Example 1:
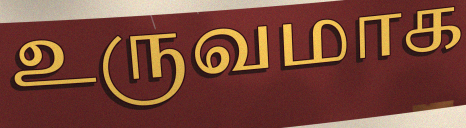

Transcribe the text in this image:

உருவமாக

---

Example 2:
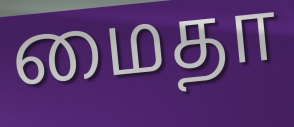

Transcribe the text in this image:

மைதா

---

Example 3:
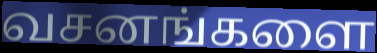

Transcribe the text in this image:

வசனங்களை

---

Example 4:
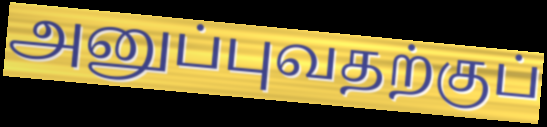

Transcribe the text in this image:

அனுப்புவதற்குப்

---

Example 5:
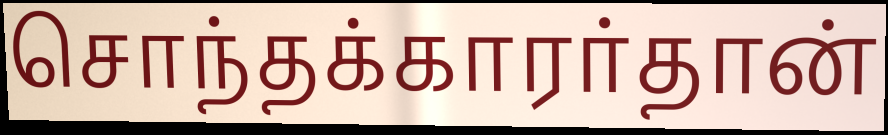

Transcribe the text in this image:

சொந்தக்காரர்தான்